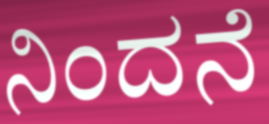
ನಿಂದನೆ